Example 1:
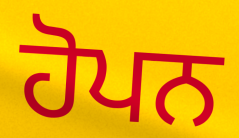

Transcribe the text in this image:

ਹੋਪਨ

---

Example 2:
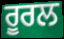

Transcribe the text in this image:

ਰੂਰਲ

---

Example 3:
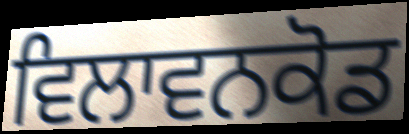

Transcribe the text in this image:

ਵਿਲਾਵਨਕੋਡ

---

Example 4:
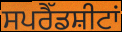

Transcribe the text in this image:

ਸਪਰੈੱਡਸ਼ੀਟਾਂ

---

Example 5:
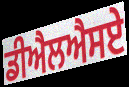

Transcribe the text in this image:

ਡੀਐਲਐਸਏ